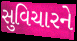
સુવિચારને